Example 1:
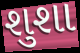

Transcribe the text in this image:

શુશા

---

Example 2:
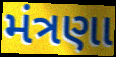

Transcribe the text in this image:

મંત્રણા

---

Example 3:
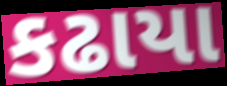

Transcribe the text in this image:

કઢાયા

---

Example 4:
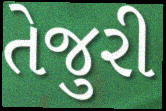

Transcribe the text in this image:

તેજુરી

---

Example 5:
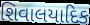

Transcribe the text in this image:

શિવાલયાદિક